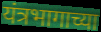
यंत्रभागाच्या